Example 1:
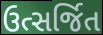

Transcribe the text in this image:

ઉત્સર્જિત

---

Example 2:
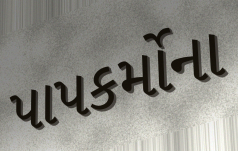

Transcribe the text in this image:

પાપકર્મોના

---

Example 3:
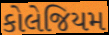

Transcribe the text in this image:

કોલેજિયમ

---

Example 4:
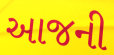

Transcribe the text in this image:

આજની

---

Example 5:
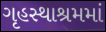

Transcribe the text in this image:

ગૃહસ્થાશ્રમમાં